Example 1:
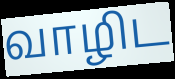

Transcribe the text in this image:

வாழிட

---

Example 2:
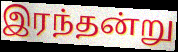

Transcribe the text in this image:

இரந்தன்று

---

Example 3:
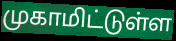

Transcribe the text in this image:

முகாமிட்டுள்ள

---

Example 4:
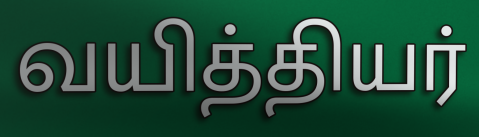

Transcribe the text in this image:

வயித்தியர்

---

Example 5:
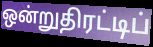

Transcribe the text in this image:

ஒன்றுதிரட்டிப்